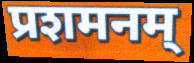
प्रशमनम्